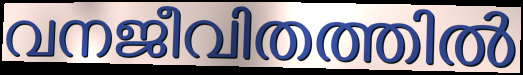
വനജീവിതത്തിൽ